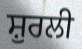
ਸ਼ੁਰਲੀ